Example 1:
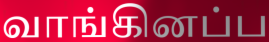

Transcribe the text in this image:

வாங்கினப்ப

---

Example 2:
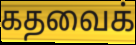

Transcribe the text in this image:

கதவைக்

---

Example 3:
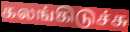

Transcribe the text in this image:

கலங்கிடுச்சு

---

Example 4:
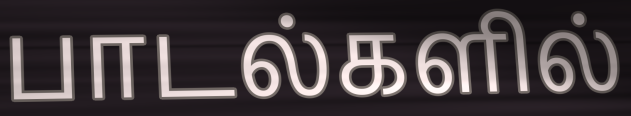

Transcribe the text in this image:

பாடல்களில்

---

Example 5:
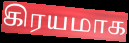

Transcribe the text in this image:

கிரயமாக